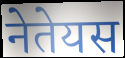
नेतेयस